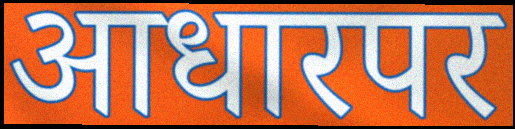
आधारपर